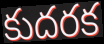
కుదరక